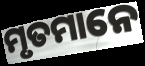
ମୃତମାନେ